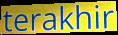
terakhir